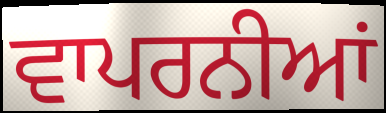
ਵਾਪਰਨੀਆਂ